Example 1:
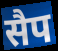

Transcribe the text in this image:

सैप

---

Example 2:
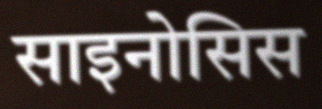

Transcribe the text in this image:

साइनोसिस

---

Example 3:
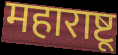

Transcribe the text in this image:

महाराष्टू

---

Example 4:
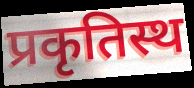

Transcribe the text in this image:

प्रकृतिस्थ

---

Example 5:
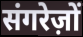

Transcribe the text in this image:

संगरेज़ों